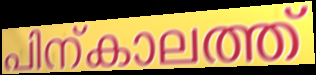
പിന്കാലത്ത്